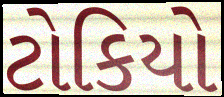
ટોકિયો